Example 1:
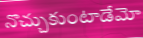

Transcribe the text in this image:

నొచ్చుకుంటాడేమో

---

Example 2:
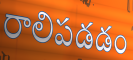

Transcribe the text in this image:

రాలిపడడం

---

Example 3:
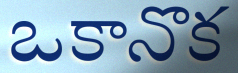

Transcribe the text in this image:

ఒకానొక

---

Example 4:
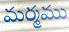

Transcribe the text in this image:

మర్మము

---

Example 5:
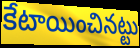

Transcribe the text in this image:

కేటాయించినట్టు